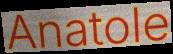
Anatole